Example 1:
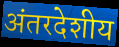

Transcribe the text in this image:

अंतरदेशीय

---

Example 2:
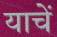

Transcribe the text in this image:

याचें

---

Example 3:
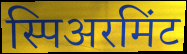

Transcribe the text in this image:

स्पिअरमिंट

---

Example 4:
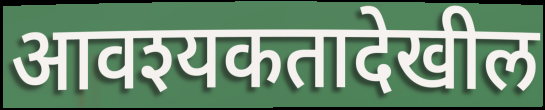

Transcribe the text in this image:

आवश्यकतादेखील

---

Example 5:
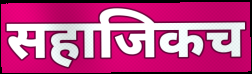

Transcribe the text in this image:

सहाजिकच